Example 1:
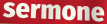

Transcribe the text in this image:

sermone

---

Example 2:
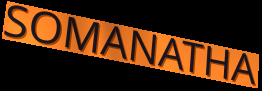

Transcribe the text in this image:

SOMANATHA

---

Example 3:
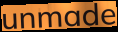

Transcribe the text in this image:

unmade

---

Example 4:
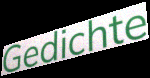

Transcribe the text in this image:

Gedichte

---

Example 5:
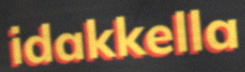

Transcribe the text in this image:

idakkella